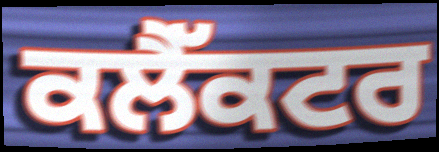
ਕਲੈੱਕਟਰ